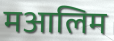
मआलिम